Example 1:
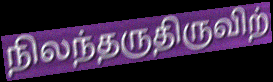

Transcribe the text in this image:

நிலந்தருதிருவிற்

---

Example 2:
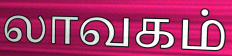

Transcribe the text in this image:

லாவகம்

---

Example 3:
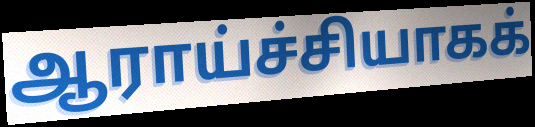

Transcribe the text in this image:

ஆராய்ச்சியாகக்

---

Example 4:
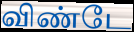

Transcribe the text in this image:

விண்டே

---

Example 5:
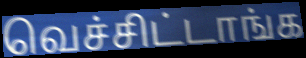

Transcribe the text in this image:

வெச்சிட்டாங்க